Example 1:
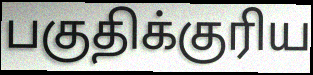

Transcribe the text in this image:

பகுதிக்குரிய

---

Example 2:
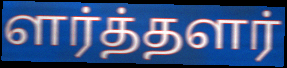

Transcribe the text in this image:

ளர்த்தளர்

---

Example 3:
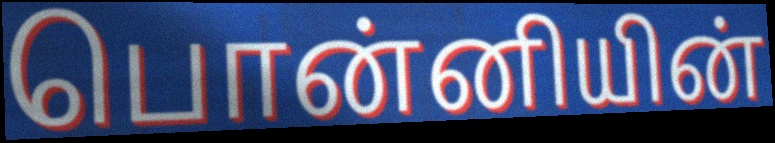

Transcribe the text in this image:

பொன்னியின்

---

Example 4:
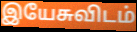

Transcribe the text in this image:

இயேசுவிடம்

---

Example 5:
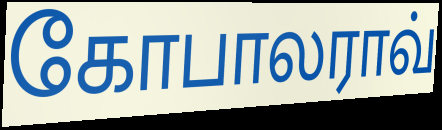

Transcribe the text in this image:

கோபாலராவ்